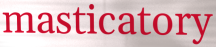
masticatory